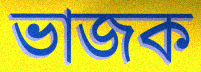
ভাজক